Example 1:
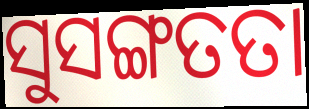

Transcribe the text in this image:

ସୁସଙ୍ଗତତା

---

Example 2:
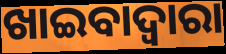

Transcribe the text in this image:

ଖାଇବାଦ୍ୱାରା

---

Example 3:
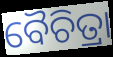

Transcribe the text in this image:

ବୈଚିତ୍ରା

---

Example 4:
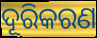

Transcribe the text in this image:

ଦୂରିକରଣ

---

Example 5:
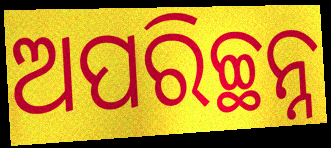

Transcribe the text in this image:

ଅପରିଚ୍ଛନ୍ନ